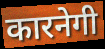
कारनेगी